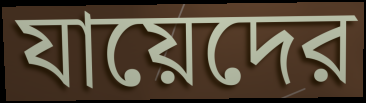
যায়েদের